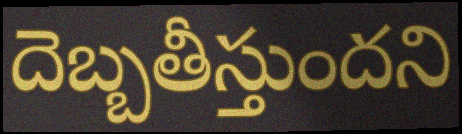
దెబ్బతీస్తుందని